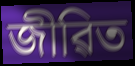
জীৱিত